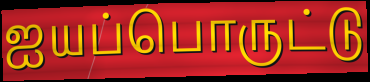
ஐயப்பொருட்டு